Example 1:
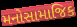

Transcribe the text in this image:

મનોસામાજિક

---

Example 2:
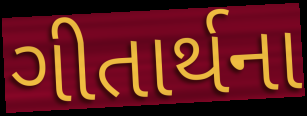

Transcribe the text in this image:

ગીતાર્થના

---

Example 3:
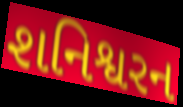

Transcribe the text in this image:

શનિશ્વરન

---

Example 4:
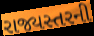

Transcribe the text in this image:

રાજ્યસ્તરની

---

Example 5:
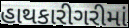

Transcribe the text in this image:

હાથકારીગરીમાં